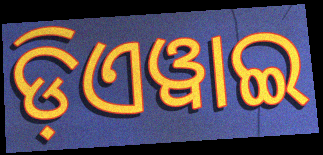
ଡ଼ିଏୱାଇ